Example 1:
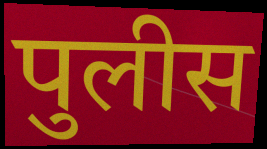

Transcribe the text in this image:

पुलीस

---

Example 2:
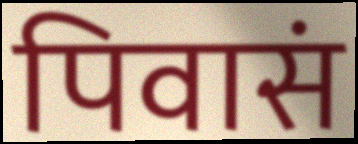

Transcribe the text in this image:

पिवासं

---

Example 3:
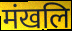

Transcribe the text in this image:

मंखलि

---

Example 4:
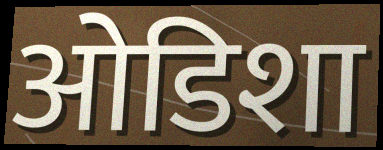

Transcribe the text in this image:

ओडिशा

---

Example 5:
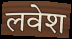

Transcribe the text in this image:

लवेश